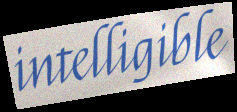
intelligible